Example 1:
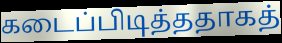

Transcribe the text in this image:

கடைப்பிடித்ததாகத்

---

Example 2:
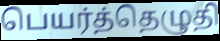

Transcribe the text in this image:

பெயர்த்தெழுதி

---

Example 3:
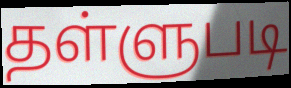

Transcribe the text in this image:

தள்ளுபடி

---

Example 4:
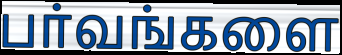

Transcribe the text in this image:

பர்வங்களை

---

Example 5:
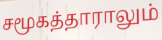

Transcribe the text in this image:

சமூகத்தாராலும்